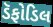
ડૅફોડિલ